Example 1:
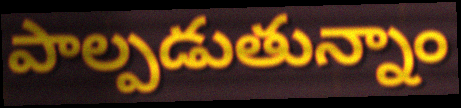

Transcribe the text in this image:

పాల్పడుతున్నాం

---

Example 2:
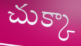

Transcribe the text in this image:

చుక్కా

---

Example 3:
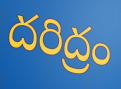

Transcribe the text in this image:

దరిద్రం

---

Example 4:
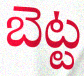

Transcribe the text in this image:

బెట్ట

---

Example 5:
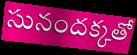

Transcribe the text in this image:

సునందక్కతో